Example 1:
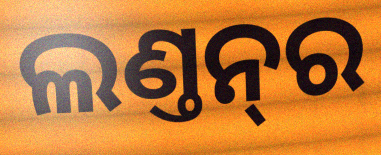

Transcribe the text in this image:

ଲଣ୍ତନ୍‌ର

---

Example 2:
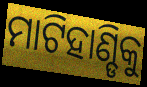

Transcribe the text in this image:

ମାଟିହାଣ୍ଡିକୁ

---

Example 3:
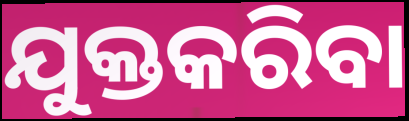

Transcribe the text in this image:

ଯୁକ୍ତକରିବା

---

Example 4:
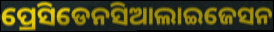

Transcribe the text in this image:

ପ୍ରେସିଡେନସିଆଲାଇଜେସନ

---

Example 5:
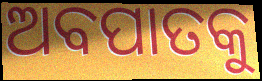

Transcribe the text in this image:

ଅବପାତକୁ